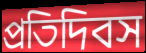
প্রতিদিবস